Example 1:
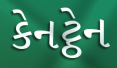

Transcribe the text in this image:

કેનટ્ઠેન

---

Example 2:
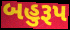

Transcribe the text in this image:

બહુરૂપ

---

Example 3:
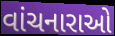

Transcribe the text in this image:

વાંચનારાઓ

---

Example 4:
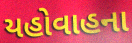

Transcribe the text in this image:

યહોવાહના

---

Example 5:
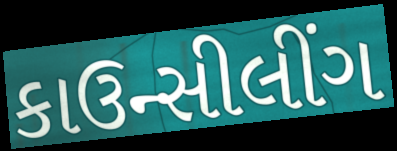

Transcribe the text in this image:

કાઉન્સીલીંગ